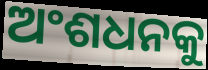
ଅଂଶଧନକୁ